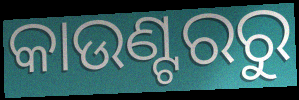
କାଉଣ୍ଟରରୁ